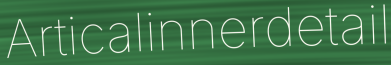
Articalinnerdetail